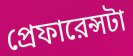
প্রেফারেন্সটা